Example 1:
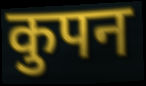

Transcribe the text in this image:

कुपन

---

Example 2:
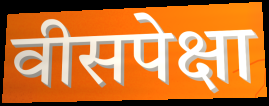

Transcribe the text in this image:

वीसपेक्षा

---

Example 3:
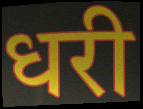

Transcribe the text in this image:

धरी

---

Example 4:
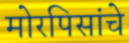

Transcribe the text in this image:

मोरपिसांचे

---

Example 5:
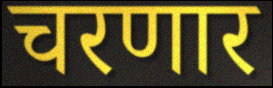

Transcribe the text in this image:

चरणार